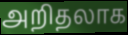
அறிதலாக